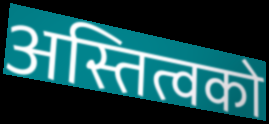
अस्तित्वको